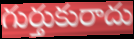
గుర్తుకురాదు